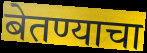
बेतण्याचा